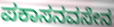
ಪಕಾಸನವಸೇನ